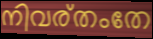
നിവര്തംതേ